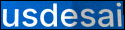
usdesai